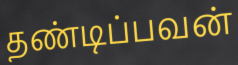
தண்டிப்பவன்